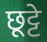
छूट्टे